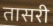
तासरी